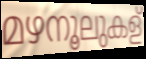
മഴനൂലുകള്